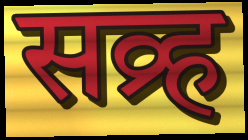
सव्र्ह